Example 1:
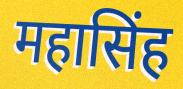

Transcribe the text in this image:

महासिंह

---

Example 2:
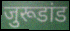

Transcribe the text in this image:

जुरूडांड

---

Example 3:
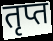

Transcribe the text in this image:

तृप्त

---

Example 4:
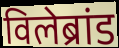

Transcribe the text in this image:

विलेब्रांड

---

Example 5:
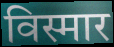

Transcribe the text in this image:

विस्मार